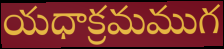
యధాక్రమముగ